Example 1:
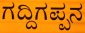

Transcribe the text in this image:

ಗದ್ದಿಗಪ್ಪನ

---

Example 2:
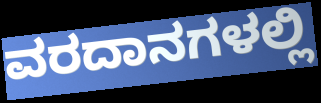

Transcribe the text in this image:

ವರದಾನಗಳಲ್ಲಿ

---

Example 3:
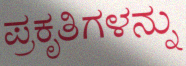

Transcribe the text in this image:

ಪ್ರಕೃತಿಗಳನ್ನು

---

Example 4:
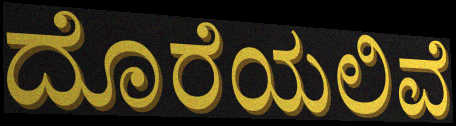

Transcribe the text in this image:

ದೊರೆಯಲಿವೆ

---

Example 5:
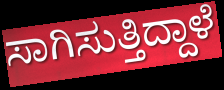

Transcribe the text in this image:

ಸಾಗಿಸುತ್ತಿದ್ದಾಳೆ